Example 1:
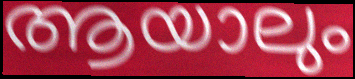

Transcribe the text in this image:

ആയാലും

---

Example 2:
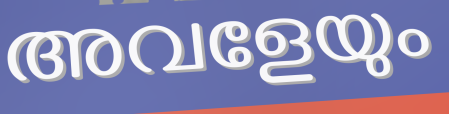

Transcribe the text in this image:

അവളേയും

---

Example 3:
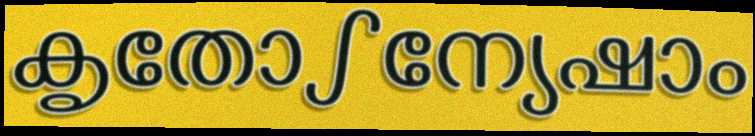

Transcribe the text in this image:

കൃതോഽന്യേഷാം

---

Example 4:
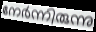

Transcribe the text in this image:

നേർന്നിരുന്നു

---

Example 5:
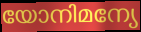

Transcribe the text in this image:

യോനിമന്യേ